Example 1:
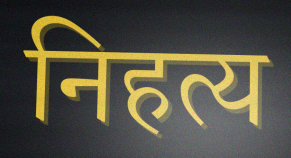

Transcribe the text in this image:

निहत्य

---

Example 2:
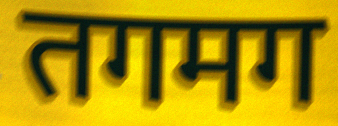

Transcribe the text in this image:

तगमग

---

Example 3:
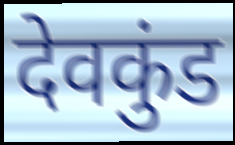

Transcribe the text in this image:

देवकुंड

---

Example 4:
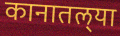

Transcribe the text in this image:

कानातल्या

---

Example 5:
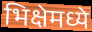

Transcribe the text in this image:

भिक्षेमध्ये